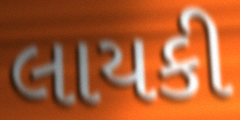
લાયકી